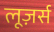
लूज़र्स